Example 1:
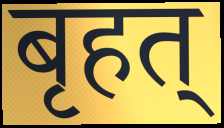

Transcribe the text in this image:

बृहत्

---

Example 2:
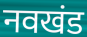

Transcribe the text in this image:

नवखंड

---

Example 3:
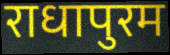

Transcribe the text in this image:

राधापुरम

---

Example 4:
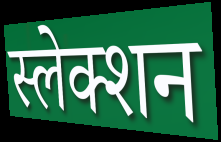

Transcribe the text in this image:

स्लेक्शन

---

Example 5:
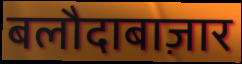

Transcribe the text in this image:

बलौदाबाज़ार